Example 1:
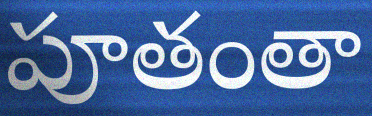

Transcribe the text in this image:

పూతంతా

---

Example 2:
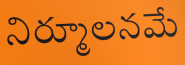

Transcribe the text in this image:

నిర్మూలనమే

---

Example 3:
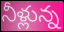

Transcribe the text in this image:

నీళ్లున్న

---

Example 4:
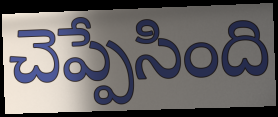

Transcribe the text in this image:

చెప్పేసింది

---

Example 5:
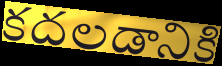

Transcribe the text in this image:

కదలడానికి